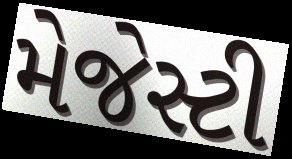
મેજેસ્ટી